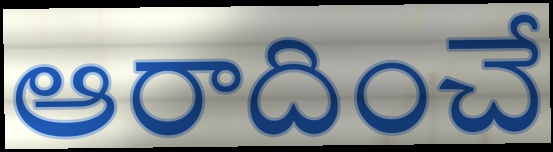
ఆరాదించే